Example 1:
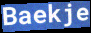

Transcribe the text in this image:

Baekje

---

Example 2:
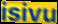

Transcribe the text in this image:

isivu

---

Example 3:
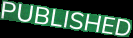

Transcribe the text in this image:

PUBLISHED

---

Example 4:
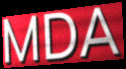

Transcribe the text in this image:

MDA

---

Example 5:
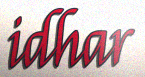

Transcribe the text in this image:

idhar